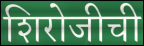
शिरोजीची